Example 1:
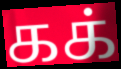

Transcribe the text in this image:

கக்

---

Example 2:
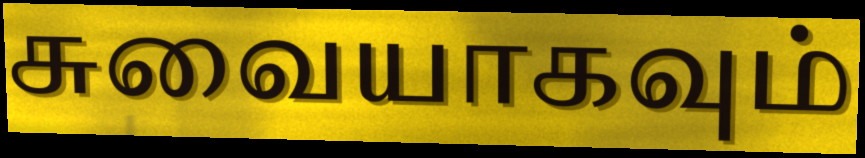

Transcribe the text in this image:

சுவையாகவும்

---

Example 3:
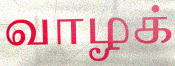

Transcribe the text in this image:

வாழக்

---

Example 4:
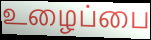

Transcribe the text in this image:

உழைப்பை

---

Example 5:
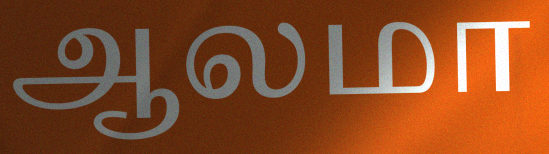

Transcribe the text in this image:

ஆலமா